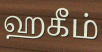
ஹகீம்